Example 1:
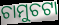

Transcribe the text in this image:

ଚାମୁଚଟା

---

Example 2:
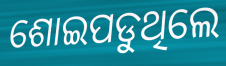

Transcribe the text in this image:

ଶୋଇପଡୁଥିଲେ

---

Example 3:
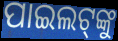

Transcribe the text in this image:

ପାଇଲଟ୍‌ଙ୍କୁ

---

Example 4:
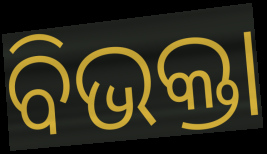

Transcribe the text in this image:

ବିଭକ୍ତା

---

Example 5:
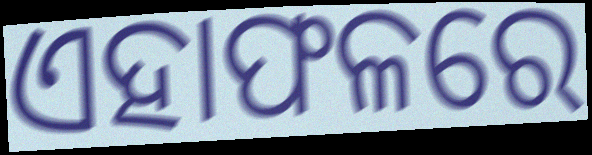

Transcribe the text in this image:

ଏହାଫଳରେ